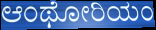
ಆಂಥೋರಿಯಂ